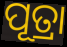
ପୂତ୍ରା